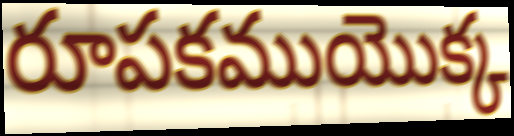
రూపకముయొక్క